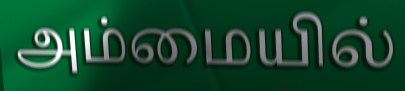
அம்மையில்